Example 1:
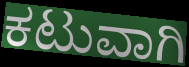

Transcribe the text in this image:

ಕಟುವಾಗಿ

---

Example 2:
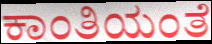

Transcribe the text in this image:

ಕಾಂತಿಯಂತೆ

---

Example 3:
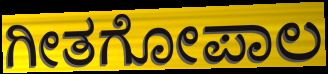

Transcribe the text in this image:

ಗೀತಗೋಪಾಲ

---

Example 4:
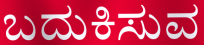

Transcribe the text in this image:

ಬದುಕಿಸುವ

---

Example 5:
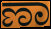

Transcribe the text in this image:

ಣಾ